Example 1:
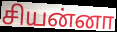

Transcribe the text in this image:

சியன்னா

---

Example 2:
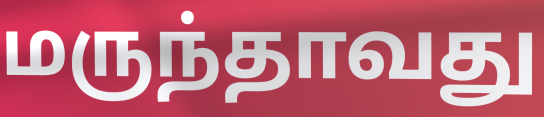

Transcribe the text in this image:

மருந்தாவது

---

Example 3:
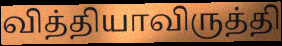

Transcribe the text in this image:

வித்தியாவிருத்தி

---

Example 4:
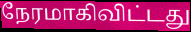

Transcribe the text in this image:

நேரமாகிவிட்டது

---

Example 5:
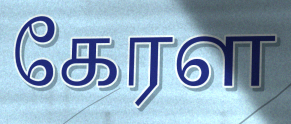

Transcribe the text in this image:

கேரள